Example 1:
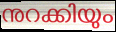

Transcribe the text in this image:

നുറക്കിയും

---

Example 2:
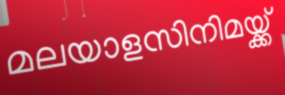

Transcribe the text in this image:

മലയാളസിനിമയ്ക്ക്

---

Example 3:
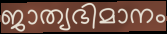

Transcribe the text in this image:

ജാത്യഭിമാനം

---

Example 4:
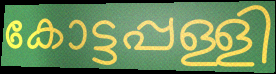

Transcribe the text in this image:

കോട്ടപ്പള്ളി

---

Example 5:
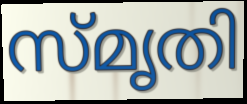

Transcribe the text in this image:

സ്മൃതി